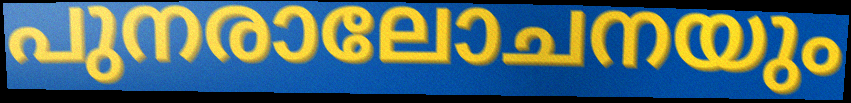
പുനരാലോചനയും